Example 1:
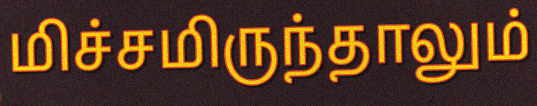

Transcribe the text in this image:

மிச்சமிருந்தாலும்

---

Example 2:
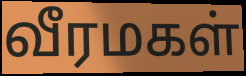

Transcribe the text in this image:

வீரமகள்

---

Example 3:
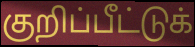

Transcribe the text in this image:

குறிப்பீட்டுக்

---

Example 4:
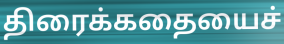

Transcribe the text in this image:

திரைக்கதையைச்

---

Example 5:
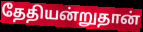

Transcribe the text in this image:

தேதியன்றுதான்